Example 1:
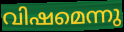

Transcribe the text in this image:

വിഷമെന്നു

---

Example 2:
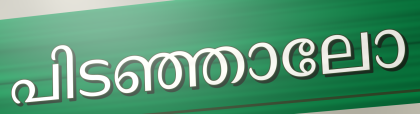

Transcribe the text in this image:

പിടഞ്ഞാലോ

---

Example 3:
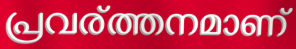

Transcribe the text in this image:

പ്രവര്ത്തനമാണ്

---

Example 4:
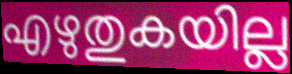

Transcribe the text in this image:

എഴുതുകയില്ല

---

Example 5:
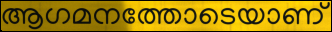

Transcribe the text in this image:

ആഗമനത്തോടെയാണ്